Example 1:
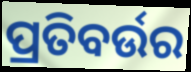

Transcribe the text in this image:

ପ୍ରତିବର୍ଉର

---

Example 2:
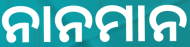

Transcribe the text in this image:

ନାନମାନ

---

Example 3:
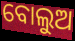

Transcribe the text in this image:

ବୋଲୁଅ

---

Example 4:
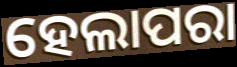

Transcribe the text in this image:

ହେଲାପରା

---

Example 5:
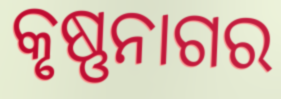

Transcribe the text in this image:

କୃଷ୍ଣନାଗର